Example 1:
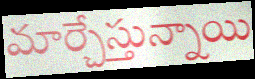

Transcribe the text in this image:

మార్చేస్తున్నాయి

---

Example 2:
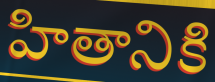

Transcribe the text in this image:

హితానికి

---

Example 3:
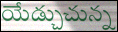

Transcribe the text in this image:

యేడ్చుచున్న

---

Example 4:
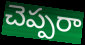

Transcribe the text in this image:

చెప్పరా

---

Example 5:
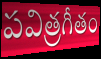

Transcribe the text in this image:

పవిత్రగీతం